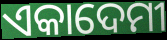
ଏକାଦେମୀ